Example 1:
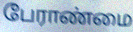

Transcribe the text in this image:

பேராண்மை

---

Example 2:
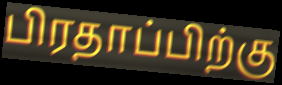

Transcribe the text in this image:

பிரதாப்பிற்கு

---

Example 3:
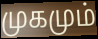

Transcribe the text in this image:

முகமும்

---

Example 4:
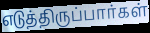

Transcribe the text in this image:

எடுத்திருப்பார்கள்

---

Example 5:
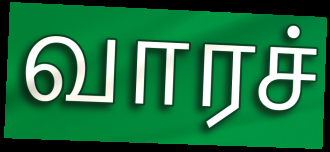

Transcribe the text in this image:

வாரச்